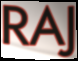
RAJ